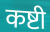
कष्टी